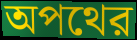
অপথের